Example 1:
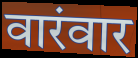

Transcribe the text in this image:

वारंवार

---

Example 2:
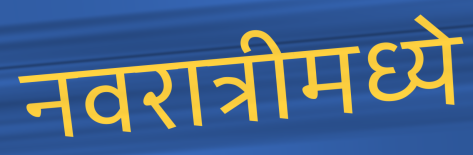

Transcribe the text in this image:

नवरात्रीमध्ये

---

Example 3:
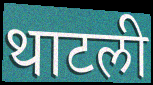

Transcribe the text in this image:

थाटली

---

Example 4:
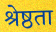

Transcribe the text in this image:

श्रेष्ठता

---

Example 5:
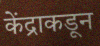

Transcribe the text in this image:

केंद्राकडून